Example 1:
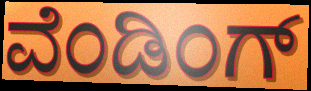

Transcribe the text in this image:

ವೆಂಡಿಂಗ್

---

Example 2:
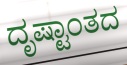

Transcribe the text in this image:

ದೃಷ್ಟಾಂತದ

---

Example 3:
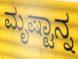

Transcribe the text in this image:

ಮೃಷ್ಟಾನ್ನ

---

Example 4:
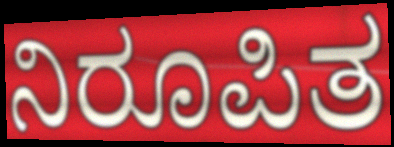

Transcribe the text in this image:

ನಿರೂಪಿತ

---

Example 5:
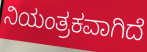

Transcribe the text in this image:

ನಿಯಂತ್ರಕವಾಗಿದೆ